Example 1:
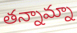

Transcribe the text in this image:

తన్నామ్నా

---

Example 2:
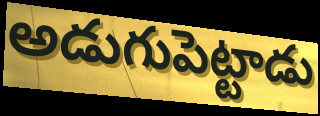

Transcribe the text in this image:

అడుగుపెట్టాడు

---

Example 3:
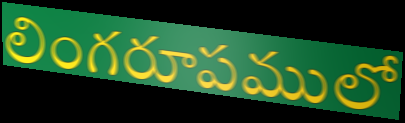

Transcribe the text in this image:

లింగరూపములో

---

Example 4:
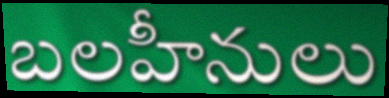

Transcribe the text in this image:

బలహీనులు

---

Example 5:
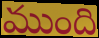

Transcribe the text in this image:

ముంది